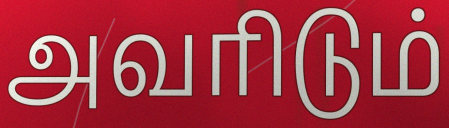
அவரிடும்